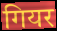
गियर